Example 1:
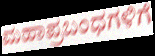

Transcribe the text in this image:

ಮಹಾಪ್ರಬಂಧಗಳಿಗೆ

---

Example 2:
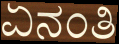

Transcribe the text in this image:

ಏನಂತಿ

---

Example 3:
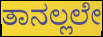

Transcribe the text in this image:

ತಾನಲ್ಲಲೇ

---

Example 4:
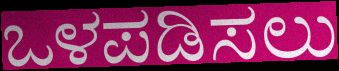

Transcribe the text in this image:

ಒಳಪಡಿಸಲು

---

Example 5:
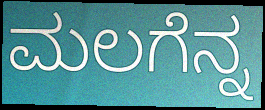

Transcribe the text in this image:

ಮಲಗೆನ್ನ